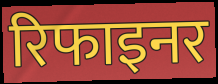
रिफाइनर